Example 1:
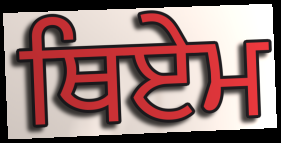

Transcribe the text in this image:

ਥਿਏਮ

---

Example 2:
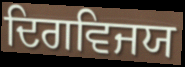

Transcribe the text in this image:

ਦਿਗਵਿਜਯ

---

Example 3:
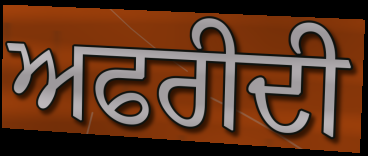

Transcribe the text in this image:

ਅਫਰੀਦੀ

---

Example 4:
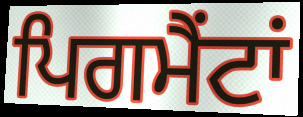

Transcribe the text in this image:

ਪਿਗਮੈਂਟਾਂ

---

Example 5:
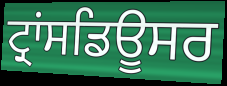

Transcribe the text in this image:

ਟ੍ਰਾਂਸਡਿਊਸਰ